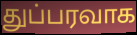
துப்பரவாக